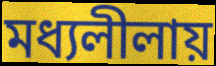
মধ্যলীলায়